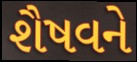
શૈષવને